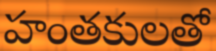
హంతకులతో